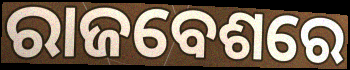
ରାଜବେଶରେ